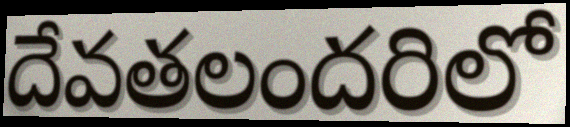
దేవతలందరిలో